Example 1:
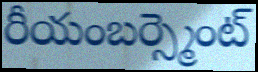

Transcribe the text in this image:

రీయంబర్స్మెంట్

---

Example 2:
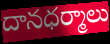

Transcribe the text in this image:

దానధర్మాలు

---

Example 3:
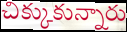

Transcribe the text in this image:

చిక్కుకున్నారు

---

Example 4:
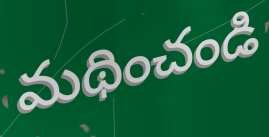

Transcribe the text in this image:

మథించండి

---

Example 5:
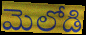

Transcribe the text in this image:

మెలోడి